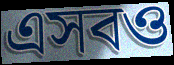
এসবও